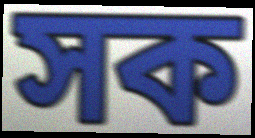
সক